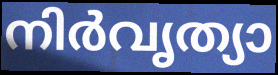
നിർവൃത്യാ